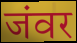
जंवर